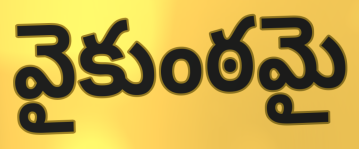
వైకుంఠమై